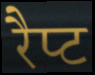
रैप्ट